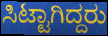
ಸಿಟ್ಟಾಗಿದ್ದರು